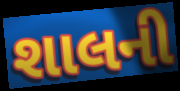
શાલની